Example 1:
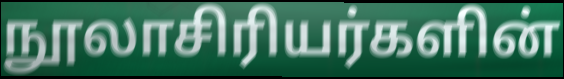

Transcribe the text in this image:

நூலாசிரியர்களின்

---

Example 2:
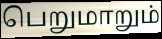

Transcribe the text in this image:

பெறுமாறும்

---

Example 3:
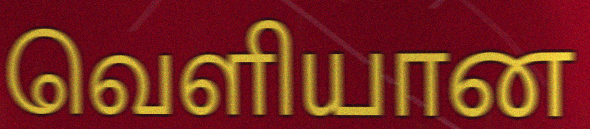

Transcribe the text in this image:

வெளியான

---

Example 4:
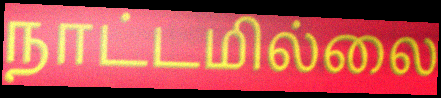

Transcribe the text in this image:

நாட்டமில்லை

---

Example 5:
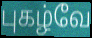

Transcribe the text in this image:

புகழ்வே